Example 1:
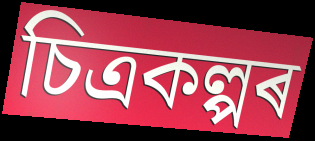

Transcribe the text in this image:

চিত্ৰকল্পৰ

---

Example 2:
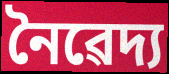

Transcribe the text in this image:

নৈৱেদ্য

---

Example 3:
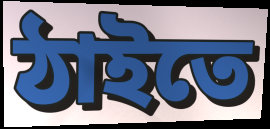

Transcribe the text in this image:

ঠাইতে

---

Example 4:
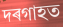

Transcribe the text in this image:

দৰগাহত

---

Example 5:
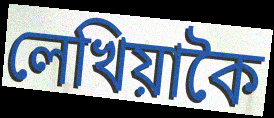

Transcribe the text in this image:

লেখিয়াকৈ